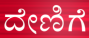
ದೇಣಿಗೆ